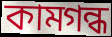
কামগন্ধ